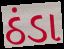
ઠંડા